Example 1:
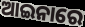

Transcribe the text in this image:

ଆଇନାରେ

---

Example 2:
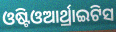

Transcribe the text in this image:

ଓଷ୍ଟିଓଆର୍ଥ୍ରାଇଟିସ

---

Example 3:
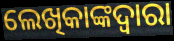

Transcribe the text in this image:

ଲେଖିକାଙ୍କଦ୍ୱାରା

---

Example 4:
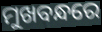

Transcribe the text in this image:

ମୁଖବନ୍ଧରେ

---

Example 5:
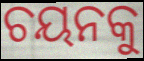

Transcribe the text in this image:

ଚୟନକୁ